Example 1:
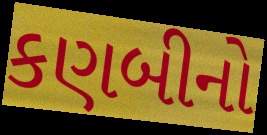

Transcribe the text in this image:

કણબીનો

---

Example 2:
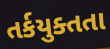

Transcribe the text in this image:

તર્કયુક્તતા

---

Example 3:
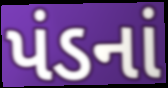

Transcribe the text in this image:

પંડનાં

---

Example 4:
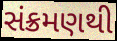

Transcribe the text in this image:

સંક્રમણથી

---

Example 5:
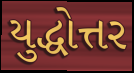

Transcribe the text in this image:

યુદ્ધોત્તર